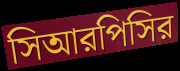
সিআরপিসির